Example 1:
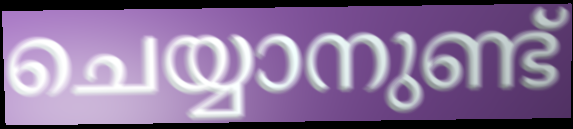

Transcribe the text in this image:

ചെയ്യാനുണ്ട്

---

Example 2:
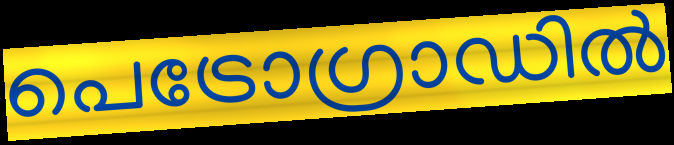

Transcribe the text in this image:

പെട്രോഗ്രാഡിൽ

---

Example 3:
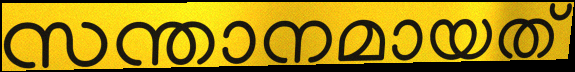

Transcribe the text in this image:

സന്താനമായത്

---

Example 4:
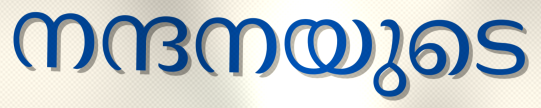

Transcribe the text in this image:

നന്ദനയുടെ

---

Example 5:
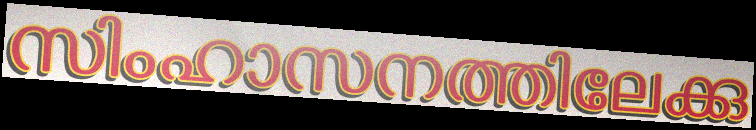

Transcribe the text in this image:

സിംഹാസനത്തിലേക്കു